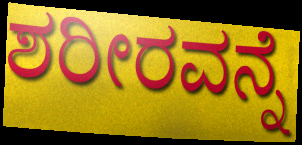
ಶರೀರವನ್ನೆ